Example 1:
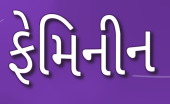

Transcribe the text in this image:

ફેમિનીન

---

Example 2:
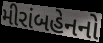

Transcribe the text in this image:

મીરાંબહેનનો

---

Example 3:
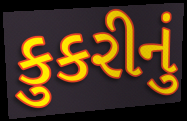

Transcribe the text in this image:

કુકરીનું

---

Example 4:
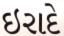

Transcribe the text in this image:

ઇરાદે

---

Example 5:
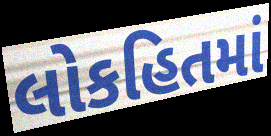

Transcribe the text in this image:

લોકહિતમાં